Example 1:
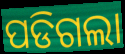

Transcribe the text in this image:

ପଡିଗଲା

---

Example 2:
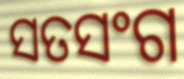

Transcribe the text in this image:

ସତସଂଗ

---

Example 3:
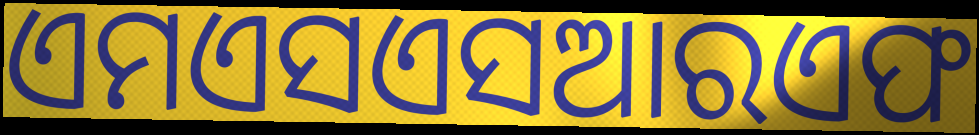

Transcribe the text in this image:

ଏମଏସଏସଆରଏଫ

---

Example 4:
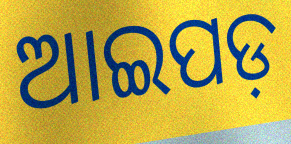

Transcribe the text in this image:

ଆଇପଡ଼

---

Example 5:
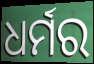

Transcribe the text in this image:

ଧର୍ମର